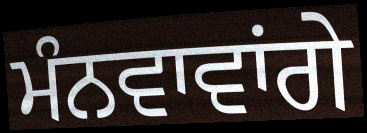
ਮੰਨਵਾਵਾਂਗੇ